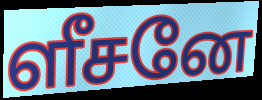
ளீசனே